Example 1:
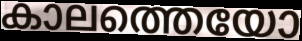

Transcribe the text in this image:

കാലത്തെയോ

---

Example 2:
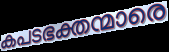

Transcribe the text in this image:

കപടഭക്തന്മാരെ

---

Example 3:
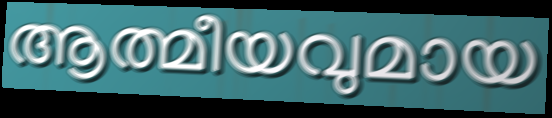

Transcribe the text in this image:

ആത്മീയവുമായ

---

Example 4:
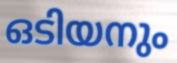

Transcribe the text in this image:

ഒടിയനും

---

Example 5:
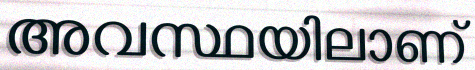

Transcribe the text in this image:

അവസ്ഥയിലാണ്